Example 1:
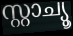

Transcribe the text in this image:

സ്റ്റാച്യൂ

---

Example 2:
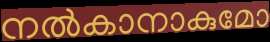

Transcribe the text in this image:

നൽകാനാകുമോ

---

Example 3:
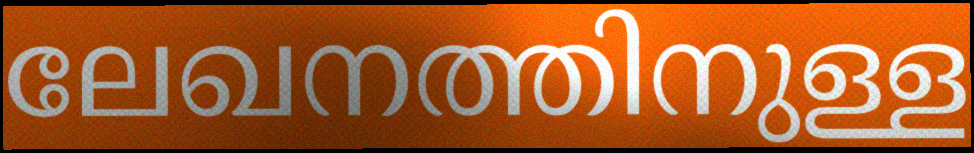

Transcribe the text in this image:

ലേഖനത്തിനുള്ള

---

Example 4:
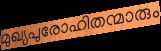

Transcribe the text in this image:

മുഖ്യപുരോഹിതന്മാരും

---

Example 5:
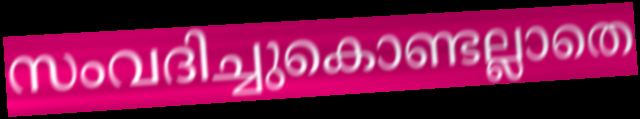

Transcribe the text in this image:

സംവദിച്ചുകൊണ്ടല്ലാതെ